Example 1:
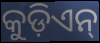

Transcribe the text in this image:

କୁଡ଼ିଏନ୍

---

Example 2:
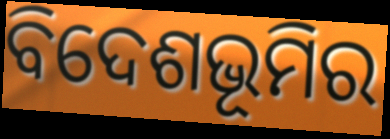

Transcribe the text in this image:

ବିଦେଶଭୂମିର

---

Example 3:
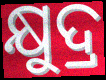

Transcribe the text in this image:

କ୍ଷୁଦ୍ର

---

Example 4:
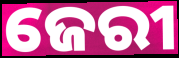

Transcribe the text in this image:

ଜେରୀ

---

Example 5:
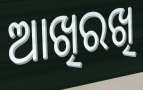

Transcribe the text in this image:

ଆଖିରଖି